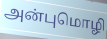
அன்புமொழி